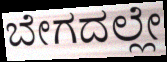
ಬೇಗದಲ್ಲೇ